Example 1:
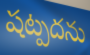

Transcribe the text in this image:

షట్పదను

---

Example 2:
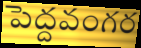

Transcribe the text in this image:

పెద్దవంగర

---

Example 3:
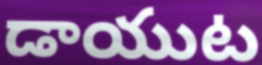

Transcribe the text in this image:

డాయుట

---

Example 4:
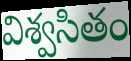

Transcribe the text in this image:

విశ్వసితం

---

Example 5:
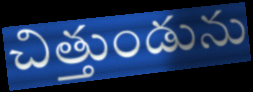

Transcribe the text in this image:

చిత్తుండును